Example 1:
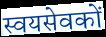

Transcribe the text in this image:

स्वयसेवकों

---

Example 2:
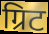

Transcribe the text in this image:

ग्रिट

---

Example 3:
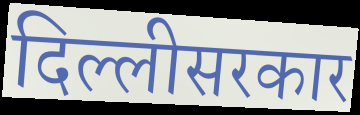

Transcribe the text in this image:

दिल्लीसरकार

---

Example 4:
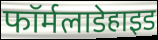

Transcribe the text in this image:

फॉर्मलाडेहाइड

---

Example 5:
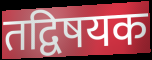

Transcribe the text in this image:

तद्विषयक